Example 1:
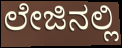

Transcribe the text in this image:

ಲೇಜಿನಲ್ಲಿ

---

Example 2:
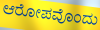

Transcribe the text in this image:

ಆರೋಪವೊಂದು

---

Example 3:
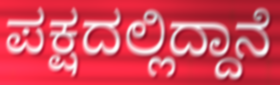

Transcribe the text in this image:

ಪಕ್ಷದಲ್ಲಿದ್ದಾನೆ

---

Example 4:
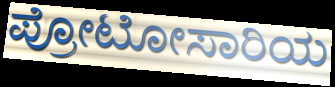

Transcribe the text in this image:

ಪ್ರೋಟೋಸಾರಿಯ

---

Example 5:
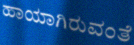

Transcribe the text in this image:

ಹಾಯಾಗಿರುವಂತೆ